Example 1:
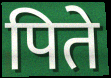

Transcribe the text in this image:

पिते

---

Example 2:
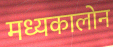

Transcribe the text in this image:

मध्यकालोन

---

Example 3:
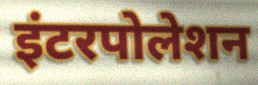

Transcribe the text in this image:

इंटरपोलेशन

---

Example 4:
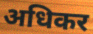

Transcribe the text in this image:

अधिकर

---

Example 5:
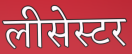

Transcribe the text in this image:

लीसेस्टर